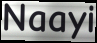
Naayi